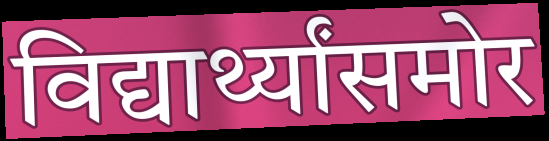
विद्यार्थ्यांसमोर